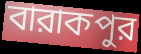
বারাকপুর